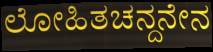
ಲೋಹಿತಚನ್ದನೇನ